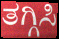
ತಗ್ಗಿಸಿ